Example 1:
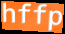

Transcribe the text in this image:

hffp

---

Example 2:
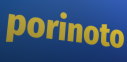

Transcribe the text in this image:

porinoto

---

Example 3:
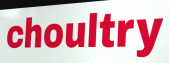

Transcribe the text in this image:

choultry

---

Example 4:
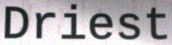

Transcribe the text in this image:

Driest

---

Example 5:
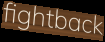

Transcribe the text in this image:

fightback